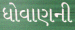
ધોવાણની